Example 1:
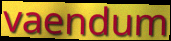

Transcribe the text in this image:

vaendum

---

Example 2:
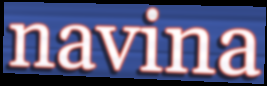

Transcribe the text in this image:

navina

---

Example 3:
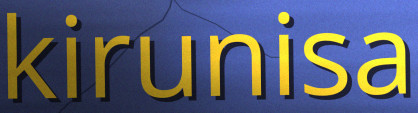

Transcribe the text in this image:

kirunisa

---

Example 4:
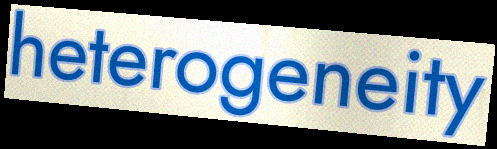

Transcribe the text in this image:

heterogeneity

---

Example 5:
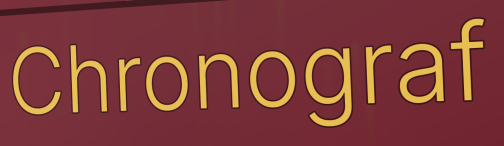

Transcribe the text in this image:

Chronograf